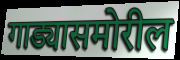
गाड्यासमोरील